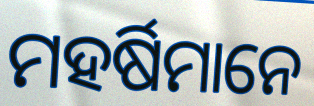
ମହର୍ଷିମାନେ